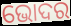
ଭୋଦର